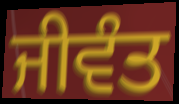
ਜੀਵੰਤ